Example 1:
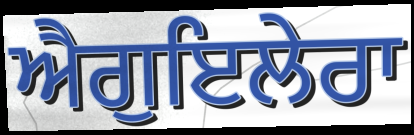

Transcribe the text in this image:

ਐਗੁਇਲੇਰਾ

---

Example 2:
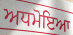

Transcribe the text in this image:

ਅਧਮੋਇਆ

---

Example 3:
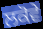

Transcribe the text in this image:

ਲਕੋਵੇ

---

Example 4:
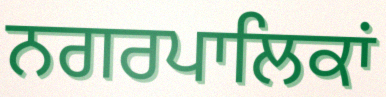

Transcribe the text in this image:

ਨਗਰਪਾਲਿਕਾਂ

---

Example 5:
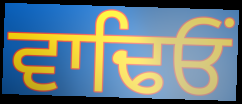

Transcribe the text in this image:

ਵਾਢਿਓਂ